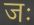
जः